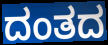
ದಂತದ